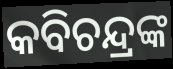
କବିଚନ୍ଦ୍ରଙ୍କ